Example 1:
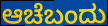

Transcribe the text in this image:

ಆಚೆಬಂದು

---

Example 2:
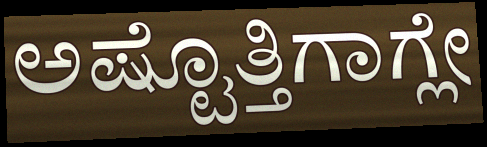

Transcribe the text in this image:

ಅಷ್ಟೊತ್ತಿಗಾಗ್ಲೇ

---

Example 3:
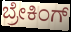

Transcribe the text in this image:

ಬ್ರೇಕಿಂಗ್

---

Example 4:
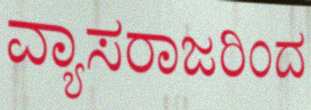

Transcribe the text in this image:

ವ್ಯಾಸರಾಜರಿಂದ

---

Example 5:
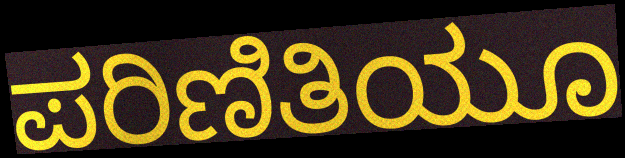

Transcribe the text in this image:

ಪರಿಣಿತಿಯೂ